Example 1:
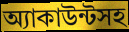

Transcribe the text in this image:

অ্যাকাউন্টসহ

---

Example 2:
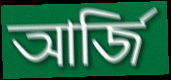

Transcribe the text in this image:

আর্জি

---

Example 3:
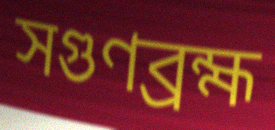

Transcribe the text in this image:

সগুণব্রহ্ম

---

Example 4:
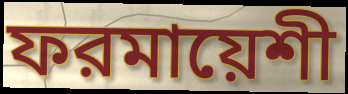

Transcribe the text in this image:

ফরমায়েশী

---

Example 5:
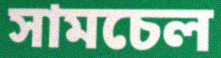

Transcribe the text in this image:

সামচেল